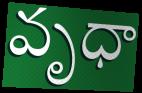
వృధా